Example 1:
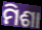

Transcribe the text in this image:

ମିଶା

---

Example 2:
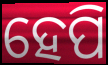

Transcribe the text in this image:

ହେପି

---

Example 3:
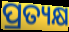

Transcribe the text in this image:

ପ୍ରତ୍ୟକ୍ଷ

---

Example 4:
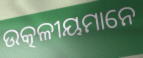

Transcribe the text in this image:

ଉତ୍କଳୀୟମାନେ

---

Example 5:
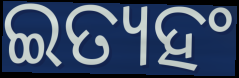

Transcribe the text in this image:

ଇତ୍ୟହଂ